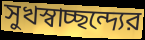
সুখস্বাচ্ছন্দ্যের